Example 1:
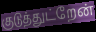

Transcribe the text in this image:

குடுத்துட்றேன்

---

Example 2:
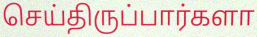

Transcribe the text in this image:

செய்திருப்பார்களா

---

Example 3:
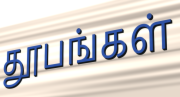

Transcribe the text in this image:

தூபங்கள்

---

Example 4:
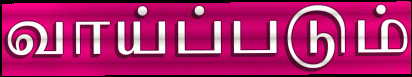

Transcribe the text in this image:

வாய்ப்படும்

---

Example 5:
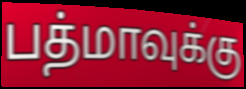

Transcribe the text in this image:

பத்மாவுக்கு